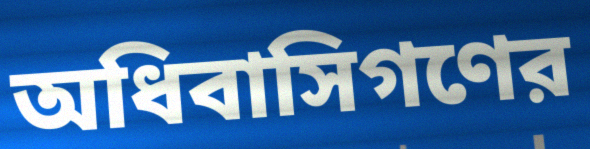
অধিবাসিগণের